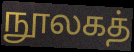
நூலகத்